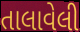
તાલાવેલી